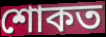
শোকত